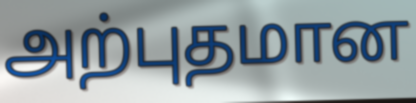
அற்புதமான